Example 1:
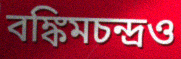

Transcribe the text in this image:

বঙ্কিমচন্দ্রও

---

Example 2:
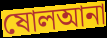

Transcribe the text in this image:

ষোলআনা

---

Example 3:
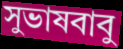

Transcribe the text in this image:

সুভাষবাবু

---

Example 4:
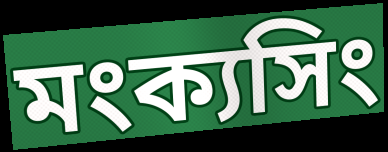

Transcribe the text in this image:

মংক্যসিং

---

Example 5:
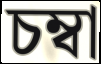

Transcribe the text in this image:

চম্বা